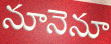
నూనెనూ